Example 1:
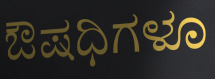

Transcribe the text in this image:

ಔಷಧಿಗಳೂ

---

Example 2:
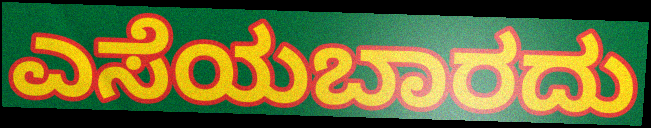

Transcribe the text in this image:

ಎಸೆಯಬಾರದು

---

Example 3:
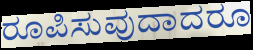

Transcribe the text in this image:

ರೂಪಿಸುವುದಾದರೂ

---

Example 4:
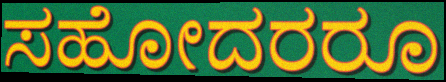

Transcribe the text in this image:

ಸಹೋದರರೂ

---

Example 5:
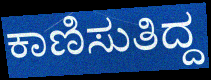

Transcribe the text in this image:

ಕಾಣಿಸುತಿದ್ದ